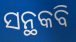
ସନ୍ଥକବି